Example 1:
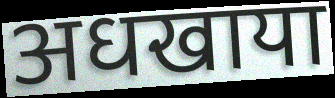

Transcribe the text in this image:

अधखाया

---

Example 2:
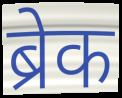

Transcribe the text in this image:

ब्रेक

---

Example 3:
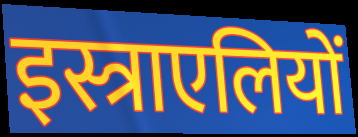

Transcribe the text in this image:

इस्त्राएलियों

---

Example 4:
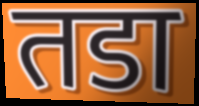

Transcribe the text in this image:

तडा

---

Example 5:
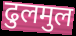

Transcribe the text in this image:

ढुलमुल